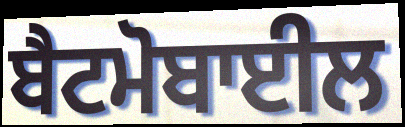
ਬੈਟਮੋਬਾਈਲ